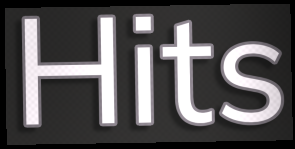
Hits